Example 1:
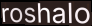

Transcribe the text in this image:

roshalo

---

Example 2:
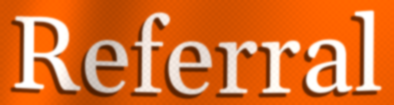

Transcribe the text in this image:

Referral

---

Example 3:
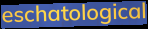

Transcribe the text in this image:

eschatological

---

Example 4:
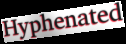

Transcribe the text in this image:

Hyphenated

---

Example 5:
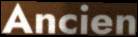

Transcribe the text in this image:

Ancien